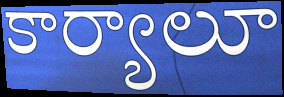
కార్యాలూ